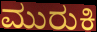
ಮುರುಕಿ